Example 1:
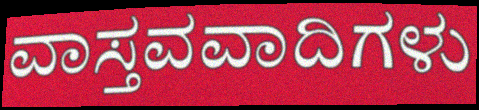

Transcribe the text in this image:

ವಾಸ್ತವವಾದಿಗಳು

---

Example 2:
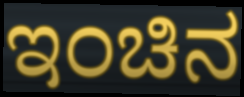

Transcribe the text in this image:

ಇಂಚಿನ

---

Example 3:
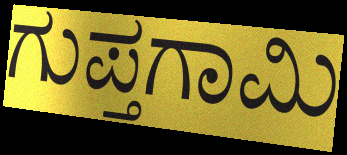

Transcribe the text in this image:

ಗುಪ್ತಗಾಮಿ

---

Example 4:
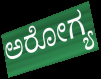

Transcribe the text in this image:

ಅರೋಗ್ಯ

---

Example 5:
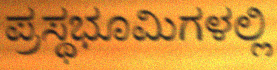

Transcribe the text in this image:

ಪ್ರಸ್ಥಭೂಮಿಗಳಲ್ಲಿ